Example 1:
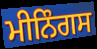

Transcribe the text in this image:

ਮੀਨਿੰਗਸ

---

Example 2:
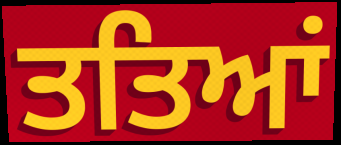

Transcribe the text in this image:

ਤਤਿਆਂ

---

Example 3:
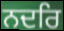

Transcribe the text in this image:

ਨਦਰਿ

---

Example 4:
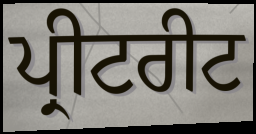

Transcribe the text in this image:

ਪ੍ਰੀਟਰੀਟ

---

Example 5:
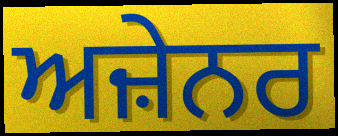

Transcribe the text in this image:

ਅਜ਼ੇਨਰ